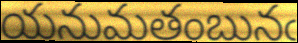
యనుమతంబునఁ